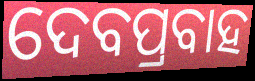
ଦେବପ୍ରବାହ